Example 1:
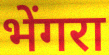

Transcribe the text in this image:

भेंगरा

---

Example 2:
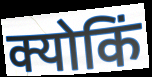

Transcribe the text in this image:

क्योकिं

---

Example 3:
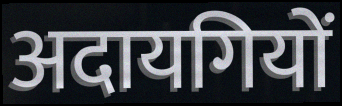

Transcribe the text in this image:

अदायगियों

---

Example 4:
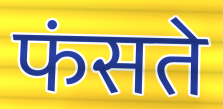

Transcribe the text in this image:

फंसते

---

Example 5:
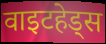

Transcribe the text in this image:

वाइटहेड्स